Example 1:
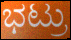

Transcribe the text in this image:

ಭಟ್ರು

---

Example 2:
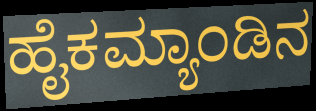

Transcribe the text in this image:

ಹೈಕಮ್ಯಾಂಡಿನ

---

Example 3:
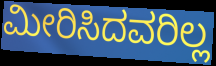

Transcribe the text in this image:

ಮೀರಿಸಿದವರಿಲ್ಲ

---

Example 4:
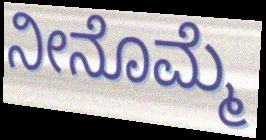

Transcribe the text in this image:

ನೀನೊಮ್ಮೆ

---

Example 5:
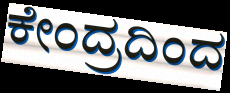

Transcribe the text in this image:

ಕೇಂದ್ರದಿಂದ